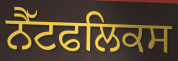
ਨੈੱਟਫਲਿਕਸ